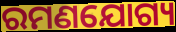
ରମଣଯୋଗ୍ୟ